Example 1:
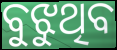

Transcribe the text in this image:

ବୁଝୁଥିବ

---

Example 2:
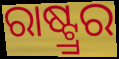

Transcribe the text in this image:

ରାଷ୍ଟ୍ର୍ରର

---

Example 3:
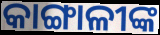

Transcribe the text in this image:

କାଙ୍ଗାଳୀଙ୍କ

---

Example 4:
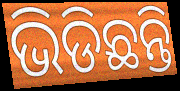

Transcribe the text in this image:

ଭିଡିଛନ୍ତି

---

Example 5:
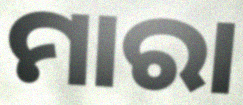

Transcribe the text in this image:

ମାରା